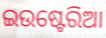
ଇଉଷ୍ଟେରିଆ